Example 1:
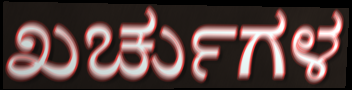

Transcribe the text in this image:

ಖರ್ಚುಗಳ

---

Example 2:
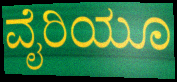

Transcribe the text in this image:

ವೈರಿಯೂ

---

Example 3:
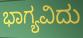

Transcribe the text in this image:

ಭಾಗ್ಯವಿದು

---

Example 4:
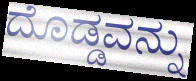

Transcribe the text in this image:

ದೊಡ್ಡವನ್ನು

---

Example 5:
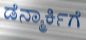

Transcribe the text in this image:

ಡೆನ್ಮಾರ್ಕಿಗೆ